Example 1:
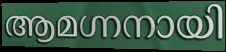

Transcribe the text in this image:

ആമഗ്നനായി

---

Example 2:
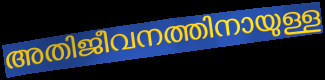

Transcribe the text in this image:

അതിജീവനത്തിനായുള്ള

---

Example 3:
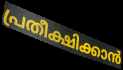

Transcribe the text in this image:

പ്രതീക്ഷിക്കാൻ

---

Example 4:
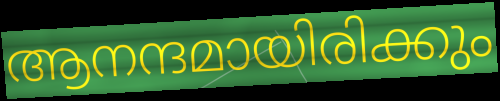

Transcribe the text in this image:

ആനന്ദമായിരിക്കും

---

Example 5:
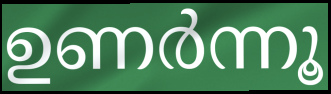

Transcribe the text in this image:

ഉണർന്നൂ